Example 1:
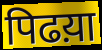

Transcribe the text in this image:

पिढय़ा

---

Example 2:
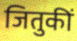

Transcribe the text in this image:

जितुकीं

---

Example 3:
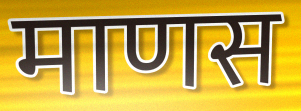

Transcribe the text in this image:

माणस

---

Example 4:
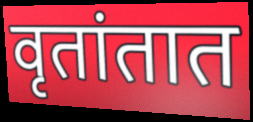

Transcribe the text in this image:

वृतांतात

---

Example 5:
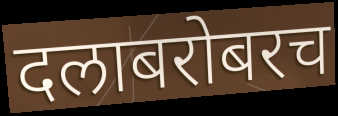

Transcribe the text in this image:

दलाबरोबरच